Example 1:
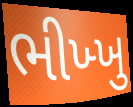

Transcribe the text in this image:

ભીખ્ખુ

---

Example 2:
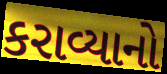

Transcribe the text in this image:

કરાવ્યાનો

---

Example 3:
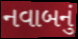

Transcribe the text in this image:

નવાબનું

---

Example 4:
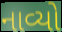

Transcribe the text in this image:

નાવ્યો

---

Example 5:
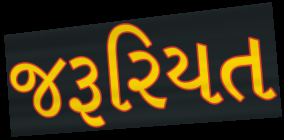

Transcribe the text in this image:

જરૂરિયત